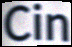
Cin